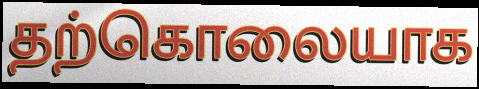
தற்கொலையாக